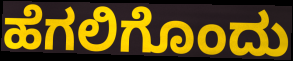
ಹೆಗಲಿಗೊಂದು